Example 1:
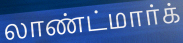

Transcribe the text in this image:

லாண்ட்மார்க்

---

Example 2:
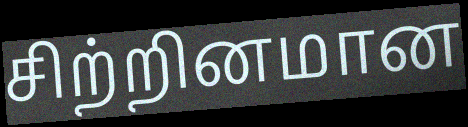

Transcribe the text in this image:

சிற்றினமான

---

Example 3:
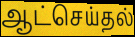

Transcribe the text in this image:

ஆட்செய்தல்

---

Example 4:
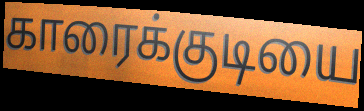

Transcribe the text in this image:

காரைக்குடியை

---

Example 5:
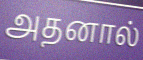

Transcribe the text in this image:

அதனால்